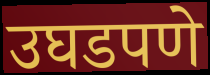
उघडपणे